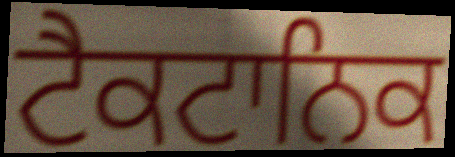
ਟੈਕਟਾਨਿਕ